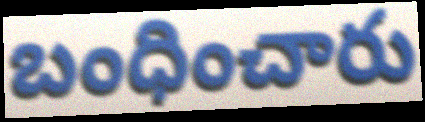
బంధించారు